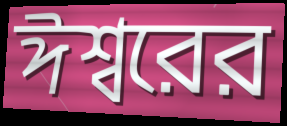
ঈশ্বরের